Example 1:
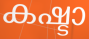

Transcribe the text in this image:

കഷ്ടാ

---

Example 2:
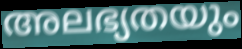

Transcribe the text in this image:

അലഭ്യതയും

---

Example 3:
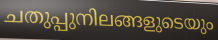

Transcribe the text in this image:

ചതുപ്പുനിലങ്ങളുടെയും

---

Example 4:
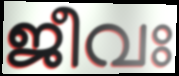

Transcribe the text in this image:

ജീവഃ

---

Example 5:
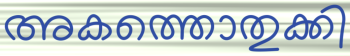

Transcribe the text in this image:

അകത്തൊതുക്കി